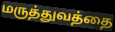
மருத்துவத்தை